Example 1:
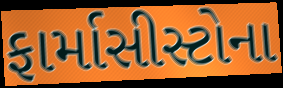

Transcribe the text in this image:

ફાર્માસીસ્ટોના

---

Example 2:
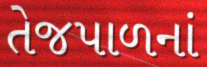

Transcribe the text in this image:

તેજપાળનાં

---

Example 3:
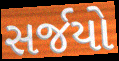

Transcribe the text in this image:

સર્જયો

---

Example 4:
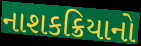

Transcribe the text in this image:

નાશકક્રિયાનો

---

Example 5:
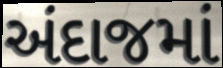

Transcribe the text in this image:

અંદાજમાં